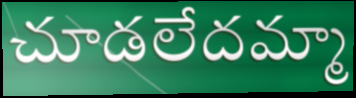
చూడలేదమ్మా